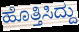
ಹೊತ್ತಿಸಿದ್ದು